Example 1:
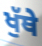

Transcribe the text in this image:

ਖੁੱਥੇ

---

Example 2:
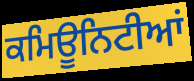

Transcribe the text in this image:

ਕਮਿਊਨਿਟੀਆਂ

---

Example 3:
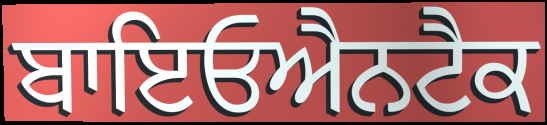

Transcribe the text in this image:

ਬਾਇਓਐਨਟੈਕ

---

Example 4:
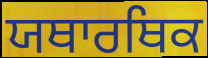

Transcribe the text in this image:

ਯਥਾਰਥਿਕ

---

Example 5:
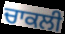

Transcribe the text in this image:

ਚਾਕਲੀ